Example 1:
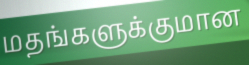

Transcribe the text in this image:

மதங்களுக்குமான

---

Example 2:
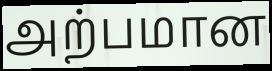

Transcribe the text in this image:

அற்பமான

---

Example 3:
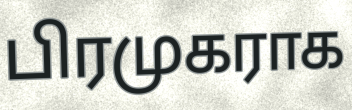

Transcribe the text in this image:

பிரமுகராக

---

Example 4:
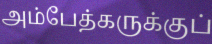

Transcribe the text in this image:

அம்பேத்கருக்குப்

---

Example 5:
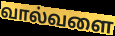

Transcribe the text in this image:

வால்வளை